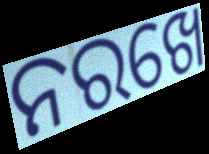
ନରଖେ